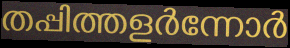
തപ്പിത്തളർന്നോർ